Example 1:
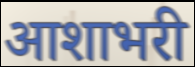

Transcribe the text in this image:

आशाभरी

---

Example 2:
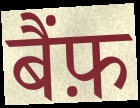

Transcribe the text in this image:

बैंफ़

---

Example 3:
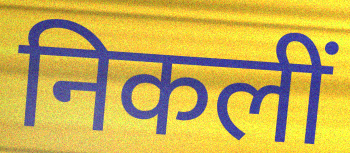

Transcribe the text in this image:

निकलीं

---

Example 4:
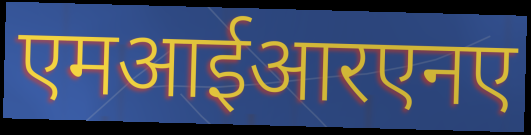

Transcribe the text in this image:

एमआईआरएनए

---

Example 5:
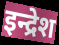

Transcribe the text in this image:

इन्द्रेश